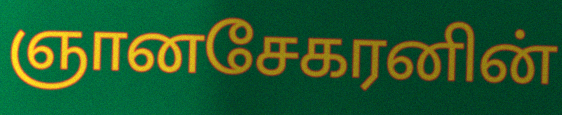
ஞானசேகரனின்